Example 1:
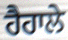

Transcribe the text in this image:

ਹੈਹਾਲੇ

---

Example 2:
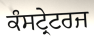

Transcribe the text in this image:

ਕੰਸਟ੍ਰੇਟਰਜ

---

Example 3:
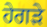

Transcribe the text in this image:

ਹੇਗੜੇ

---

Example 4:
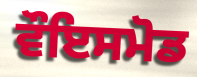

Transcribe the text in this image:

ਵੌਇਸਮੋਡ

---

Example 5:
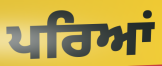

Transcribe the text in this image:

ਪਰਿਆਂ